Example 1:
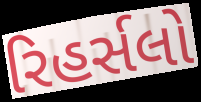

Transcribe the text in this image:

રિહર્સલો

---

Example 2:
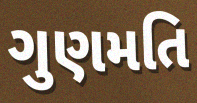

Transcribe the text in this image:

ગુણમતિ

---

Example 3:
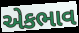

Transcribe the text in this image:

એકભાવ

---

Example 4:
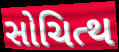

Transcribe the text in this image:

સોચિત્થ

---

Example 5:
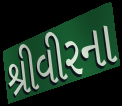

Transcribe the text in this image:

શ્રીવીરના